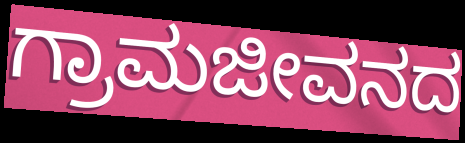
ಗ್ರಾಮಜೀವನದ